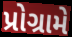
પ્રોગ્રામે